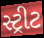
સ્ટ્રીટ